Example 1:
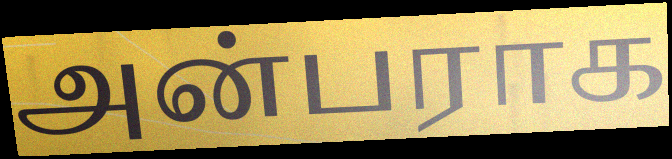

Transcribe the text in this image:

அன்பராக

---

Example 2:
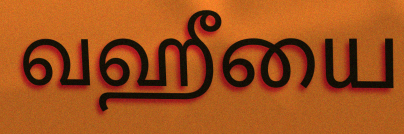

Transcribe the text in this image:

வஹீயை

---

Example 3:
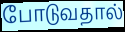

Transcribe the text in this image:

போடுவதால்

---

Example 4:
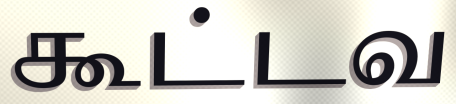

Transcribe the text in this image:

கூட்டவ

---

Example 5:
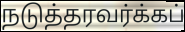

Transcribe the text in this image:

நடுத்தரவர்க்கப்